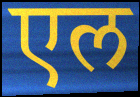
एल